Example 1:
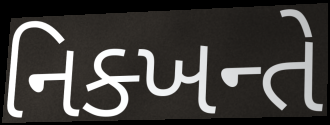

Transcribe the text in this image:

નિક્ખન્તે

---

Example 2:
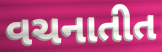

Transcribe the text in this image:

વચનાતીત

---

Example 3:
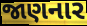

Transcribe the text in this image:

જાણનાર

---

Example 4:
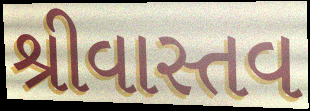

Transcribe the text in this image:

શ્રીવાસ્તવ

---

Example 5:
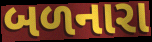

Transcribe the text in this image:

બળનારા